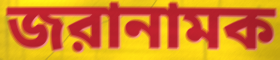
জরানামক